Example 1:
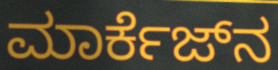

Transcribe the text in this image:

ಮಾರ್ಕೆಜ್‌ನ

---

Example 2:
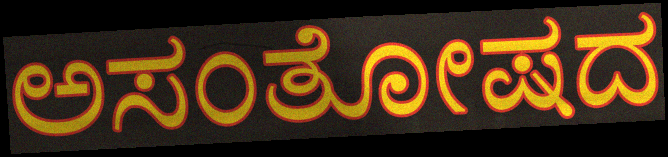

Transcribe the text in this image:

ಅಸಂತೋಷದ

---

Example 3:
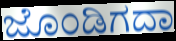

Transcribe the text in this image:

ಜೊಂಡಿಗದಾ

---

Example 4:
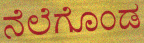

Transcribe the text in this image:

ನೆಲೆಗೊಂಡ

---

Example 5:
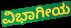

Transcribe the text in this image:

ವಿಭಾಗೀಯ